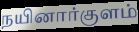
நயினார்குளம்